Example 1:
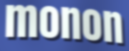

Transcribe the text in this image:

monon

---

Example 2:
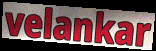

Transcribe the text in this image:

velankar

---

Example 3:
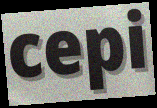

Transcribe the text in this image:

cepi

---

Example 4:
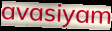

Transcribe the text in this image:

avasiyam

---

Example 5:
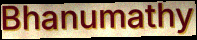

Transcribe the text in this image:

Bhanumathy